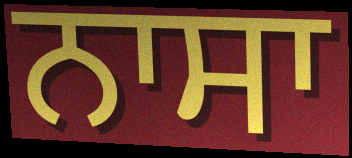
ਨਾਸਾ